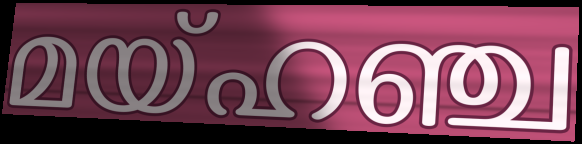
മയ്ഹഞ്ച